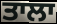
ਤਾਲਾ